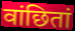
वांछितां